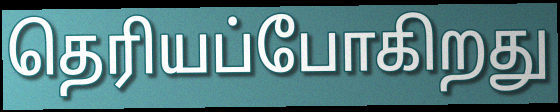
தெரியப்போகிறது